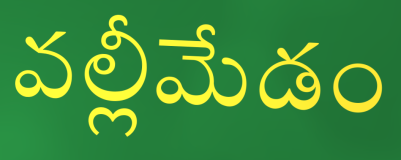
వల్లీమేడం